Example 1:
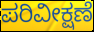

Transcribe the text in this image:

ಪರಿವೀಕ್ಷಣೆ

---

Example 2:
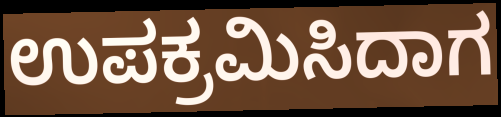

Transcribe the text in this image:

ಉಪಕ್ರಮಿಸಿದಾಗ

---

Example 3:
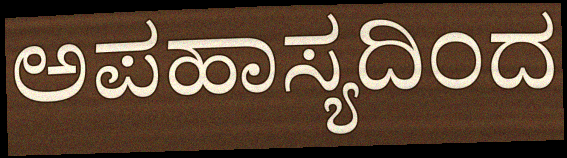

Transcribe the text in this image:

ಅಪಹಾಸ್ಯದಿಂದ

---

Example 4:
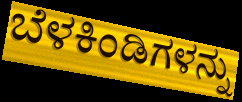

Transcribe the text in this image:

ಬೆಳಕಿಂಡಿಗಳನ್ನು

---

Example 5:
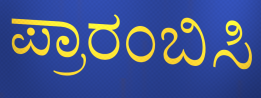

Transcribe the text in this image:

ಪ್ರಾರಂಬಿಸಿ